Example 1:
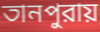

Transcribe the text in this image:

তানপুরায়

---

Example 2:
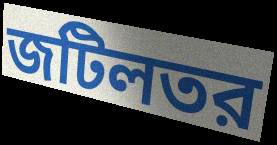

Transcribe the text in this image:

জটিলতর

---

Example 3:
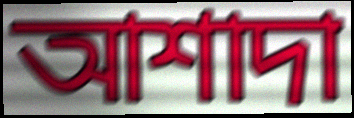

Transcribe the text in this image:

আশাদা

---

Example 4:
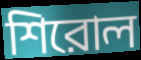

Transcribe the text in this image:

শিরোল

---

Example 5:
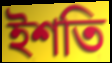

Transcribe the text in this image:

ইশতি